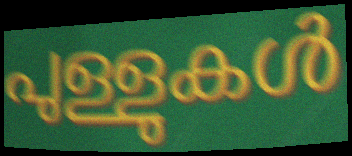
പുള്ളുകൾ